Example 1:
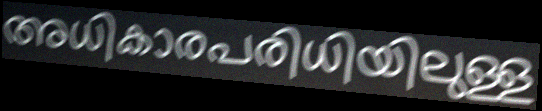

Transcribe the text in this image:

അധികാരപരിധിയിലുള്ള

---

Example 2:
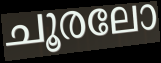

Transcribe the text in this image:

ചൂരലോ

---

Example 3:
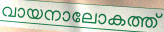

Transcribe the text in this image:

വായനാലോകത്ത്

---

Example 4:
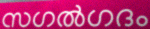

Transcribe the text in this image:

സഗൽഗദം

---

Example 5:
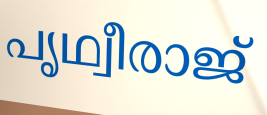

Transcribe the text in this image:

പൃഥ്വീരാജ്